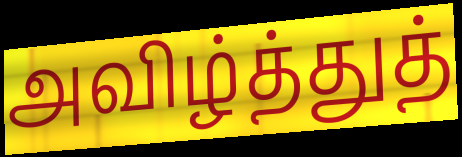
அவிழ்த்துத்